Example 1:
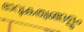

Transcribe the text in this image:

ഭാവുകത്വങ്ങളും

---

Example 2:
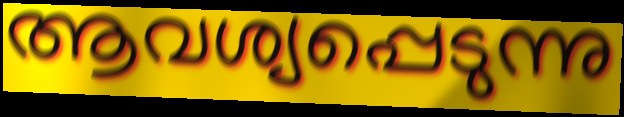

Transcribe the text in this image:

ആവശ്യപ്പെടുന്നു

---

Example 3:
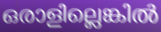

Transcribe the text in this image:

ഒരാളില്ലെങ്കിൽ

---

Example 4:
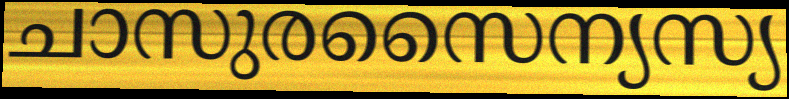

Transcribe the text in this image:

ചാസുരസൈന്യസ്യ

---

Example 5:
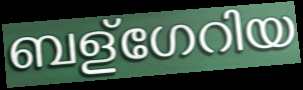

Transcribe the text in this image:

ബള്ഗേറിയ